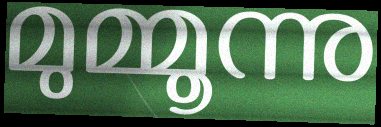
മുമ്മൂന്നു